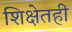
शिक्षेतही